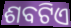
ଶବଟିଏ